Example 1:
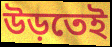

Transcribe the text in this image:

উড়তেই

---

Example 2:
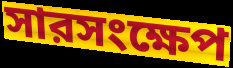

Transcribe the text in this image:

সারসংক্ষেপ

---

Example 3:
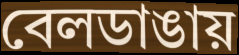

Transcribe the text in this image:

বেলডাঙায়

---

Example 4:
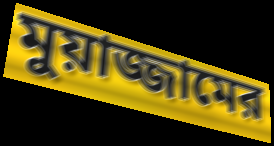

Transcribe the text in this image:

মুয়াজ্জামের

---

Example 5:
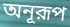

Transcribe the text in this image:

অনূরূপ